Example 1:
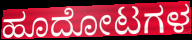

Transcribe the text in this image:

ಹೂದೋಟಗಳ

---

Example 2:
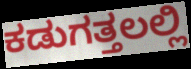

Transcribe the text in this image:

ಕಡುಗತ್ತಲಲ್ಲಿ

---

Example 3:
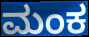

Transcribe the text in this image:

ಮಂಕ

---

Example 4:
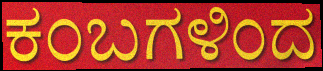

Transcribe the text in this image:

ಕಂಬಗಳಿಂದ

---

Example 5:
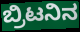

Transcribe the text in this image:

ಬ್ರಿಟನಿನ